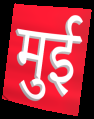
मुई